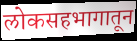
लोकसहभागातून